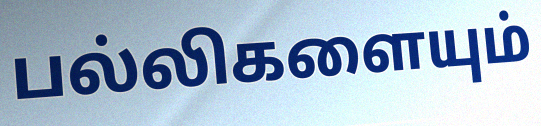
பல்லிகளையும்